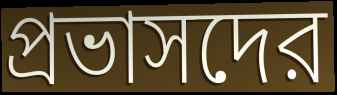
প্রভাসদের